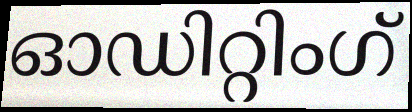
ഓഡിറ്റിംഗ്